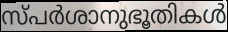
സ്പർശാനുഭൂതികൾ